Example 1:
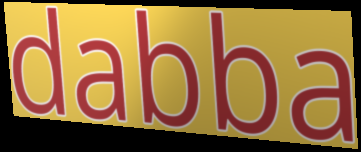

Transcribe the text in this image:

dabba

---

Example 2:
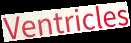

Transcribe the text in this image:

Ventricles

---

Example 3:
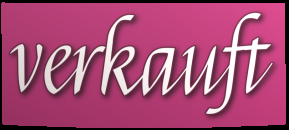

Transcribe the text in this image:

verkauft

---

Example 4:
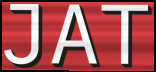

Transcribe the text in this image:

JAT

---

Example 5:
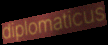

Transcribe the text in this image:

diplomaticus